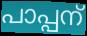
പാപ്പന്